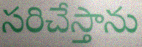
సరిచేస్తాను